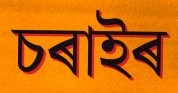
চৰাইৰ